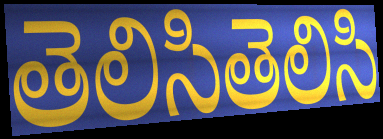
తెలిసితెలిసి